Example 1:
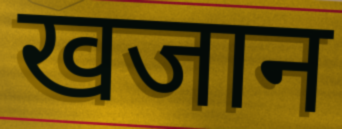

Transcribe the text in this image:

खजान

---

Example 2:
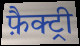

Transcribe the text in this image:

फ़ैक्ट्री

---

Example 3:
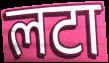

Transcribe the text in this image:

लटा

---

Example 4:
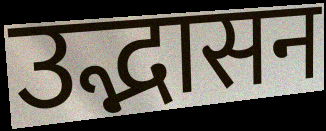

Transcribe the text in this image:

उद्भासन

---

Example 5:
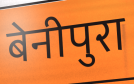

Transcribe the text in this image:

बेनीपुरा